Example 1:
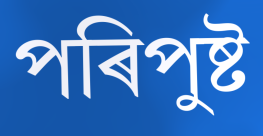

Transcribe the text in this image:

পৰিপুষ্ট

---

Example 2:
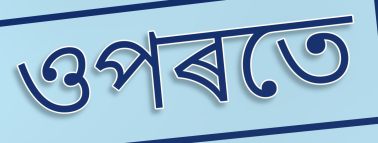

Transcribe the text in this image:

ওপৰতে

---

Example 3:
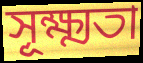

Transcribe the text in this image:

সূক্ষ্মতা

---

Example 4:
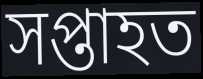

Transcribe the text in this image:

সপ্তাহত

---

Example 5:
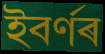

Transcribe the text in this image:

ইবৰ্ণৰ